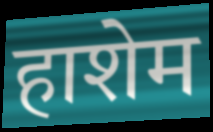
हाशेम